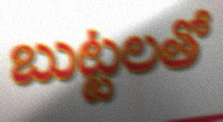
బుట్టలతో